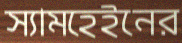
স্যামহেইনের